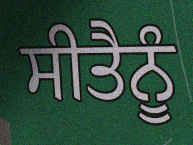
ਸੀਤੈਨੂੰ